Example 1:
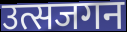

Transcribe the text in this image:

उत्सजगन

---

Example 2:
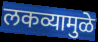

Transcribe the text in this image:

लकव्यामुळे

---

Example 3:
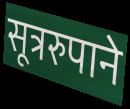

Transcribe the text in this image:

सूत्ररुपाने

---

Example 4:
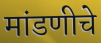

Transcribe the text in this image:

मांडणीचे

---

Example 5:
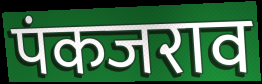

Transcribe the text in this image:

पंकजराव